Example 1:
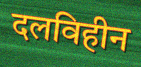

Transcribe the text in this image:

दलविहीन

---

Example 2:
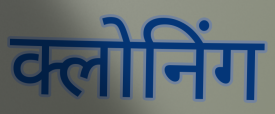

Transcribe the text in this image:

क्लोनिंग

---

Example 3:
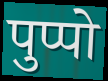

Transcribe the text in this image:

पुप्पो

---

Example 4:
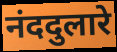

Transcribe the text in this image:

नंददुलारे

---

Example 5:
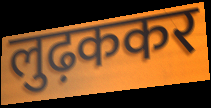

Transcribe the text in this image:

लुढ़ककर